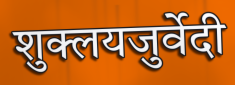
शुक्लयजुर्वेदी